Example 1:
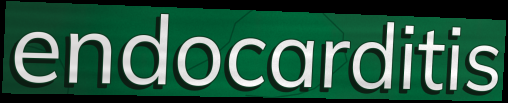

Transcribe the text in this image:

endocarditis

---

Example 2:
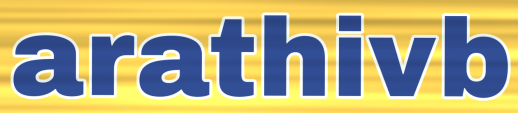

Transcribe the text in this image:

arathivb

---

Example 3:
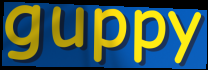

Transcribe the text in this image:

guppy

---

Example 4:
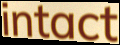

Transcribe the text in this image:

intact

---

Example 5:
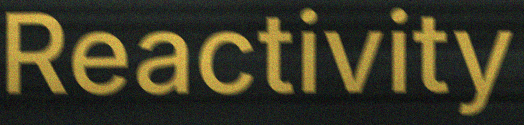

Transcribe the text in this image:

Reactivity